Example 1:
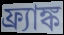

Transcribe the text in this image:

ফ্র্যাঙ্ক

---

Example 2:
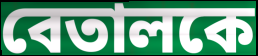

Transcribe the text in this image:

বেতালকে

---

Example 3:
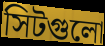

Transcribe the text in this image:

সিটগুলো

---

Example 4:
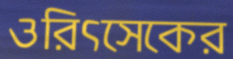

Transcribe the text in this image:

ওরিৎসেকের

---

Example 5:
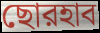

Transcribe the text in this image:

ছোরহাব